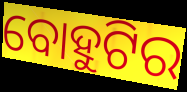
ବୋହୁଟିର